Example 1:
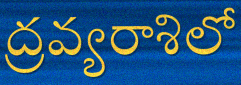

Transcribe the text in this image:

ద్రవ్యరాశిలో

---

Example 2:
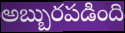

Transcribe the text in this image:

అబ్బురపడింది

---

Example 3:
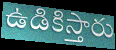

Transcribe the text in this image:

ఉడికిస్తారు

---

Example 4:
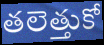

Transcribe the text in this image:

తలెత్తుకో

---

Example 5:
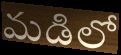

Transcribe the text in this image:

మడిలో